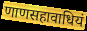
णाणसहावाधियं